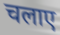
चलाए